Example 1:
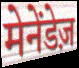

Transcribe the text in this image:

मेनेंडेज़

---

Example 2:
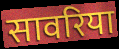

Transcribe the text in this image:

सावरिया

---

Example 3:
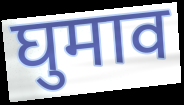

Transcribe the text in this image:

घुमाव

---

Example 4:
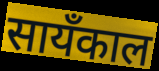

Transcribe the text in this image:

सायँकाल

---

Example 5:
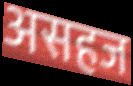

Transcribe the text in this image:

असहज